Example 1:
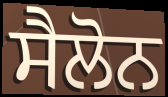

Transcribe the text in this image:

ਸੈਲੋਨ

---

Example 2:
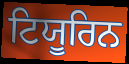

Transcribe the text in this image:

ਟਿਯੂਰਿਨ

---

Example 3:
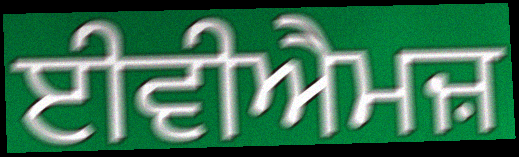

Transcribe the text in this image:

ਈਵੀਐਮਜ਼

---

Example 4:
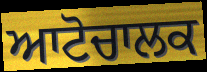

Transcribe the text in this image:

ਆਟੋਚਾਲਕ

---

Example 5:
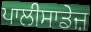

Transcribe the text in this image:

ਪਾਲੀਸਾਡੇਜ਼